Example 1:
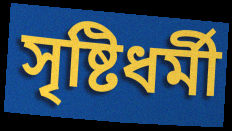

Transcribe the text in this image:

সৃষ্টিধর্মী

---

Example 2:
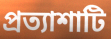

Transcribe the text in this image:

প্রত্যাশাটি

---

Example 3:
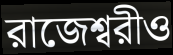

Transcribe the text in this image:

রাজেশ্বরীও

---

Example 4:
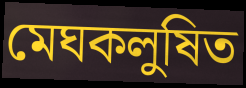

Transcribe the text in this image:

মেঘকলুষিত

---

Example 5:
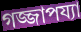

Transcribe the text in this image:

গজ্জাপয্যা